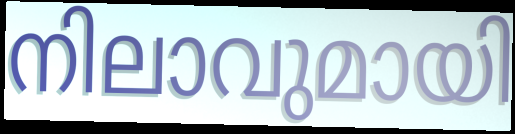
നിലാവുമായി